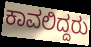
ಕಾವಲಿದ್ದರು